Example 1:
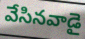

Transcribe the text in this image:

వేసినవాడై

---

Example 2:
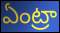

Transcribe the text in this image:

ఏంట్రా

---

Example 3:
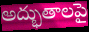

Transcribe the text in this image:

అద్భుతాలపై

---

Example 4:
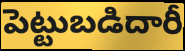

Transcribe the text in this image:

పెట్టుబడిదారీ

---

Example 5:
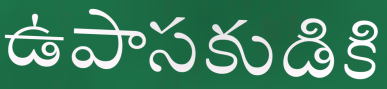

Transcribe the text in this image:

ఉపాసకుడికి